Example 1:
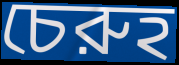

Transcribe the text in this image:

চেরুহ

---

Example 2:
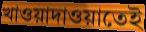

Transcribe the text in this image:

খাওয়াদাওয়াতেই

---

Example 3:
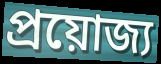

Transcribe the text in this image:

প্রয়োজ্য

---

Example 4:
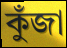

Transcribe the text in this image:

কুঁজা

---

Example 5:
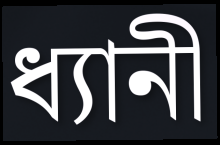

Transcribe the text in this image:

ধ্যানী